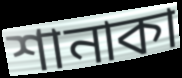
শানাকা